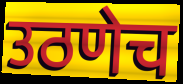
उठणेच